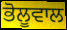
ਭੋਲੂਵਾਲ